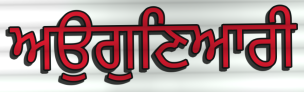
ਅਉਗੁਣਿਆਰੀ